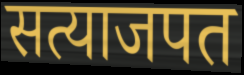
सत्याजपत